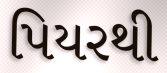
પિયરથી